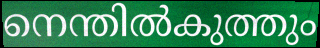
നെന്തിൽകുത്തും